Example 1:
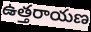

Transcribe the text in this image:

ఉత్తరాయణ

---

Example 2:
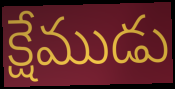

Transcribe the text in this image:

క్షేముడు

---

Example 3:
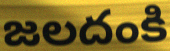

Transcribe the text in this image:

జలదంకి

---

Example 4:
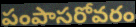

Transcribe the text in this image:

పంపాసరోవరం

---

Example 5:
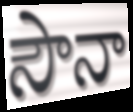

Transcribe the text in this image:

సౌనా